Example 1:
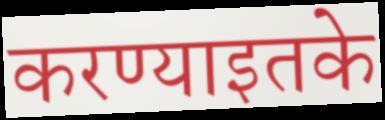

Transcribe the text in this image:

करण्याइतके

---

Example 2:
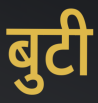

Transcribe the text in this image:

बुटी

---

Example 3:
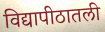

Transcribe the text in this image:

विद्यापीठातली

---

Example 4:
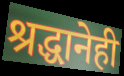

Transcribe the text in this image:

श्रद्धानेही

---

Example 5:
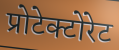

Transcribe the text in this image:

प्रोटेक्टोरेट